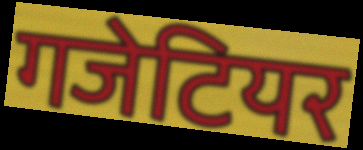
गजेटियर